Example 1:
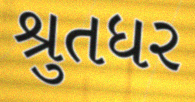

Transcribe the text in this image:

શ્રુતધર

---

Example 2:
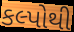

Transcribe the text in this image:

કલ્પોથી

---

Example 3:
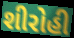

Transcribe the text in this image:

શીરોહી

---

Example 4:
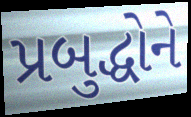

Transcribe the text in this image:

પ્રબુદ્ધોને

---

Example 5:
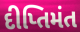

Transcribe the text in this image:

દીપ્તિમંત